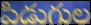
పిడుగుల